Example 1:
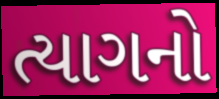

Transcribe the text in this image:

ત્યાગનો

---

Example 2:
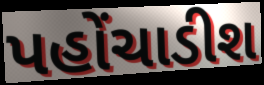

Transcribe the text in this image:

પહોંચાડીશ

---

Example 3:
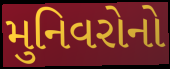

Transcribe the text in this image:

મુનિવરોનો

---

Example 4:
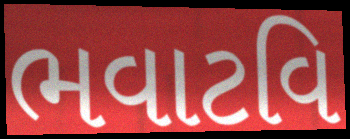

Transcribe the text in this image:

ભવાટવિ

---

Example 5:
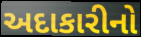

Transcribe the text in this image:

અદાકારીનો